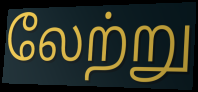
லேற்று